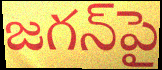
జగన్‌పై